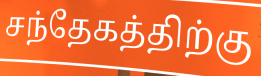
சந்தேகத்திற்கு